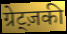
ग्रेट्ज़की